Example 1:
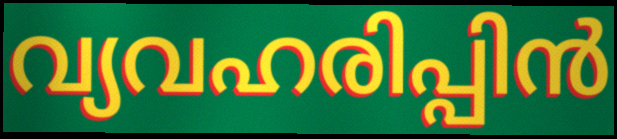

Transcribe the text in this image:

വ്യവഹരിപ്പിൻ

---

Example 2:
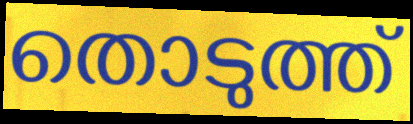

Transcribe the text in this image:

തൊടുത്ത്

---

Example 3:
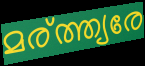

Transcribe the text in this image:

മര്ത്ത്യരേ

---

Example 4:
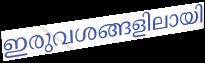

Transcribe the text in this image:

ഇരുവശങ്ങളിലായി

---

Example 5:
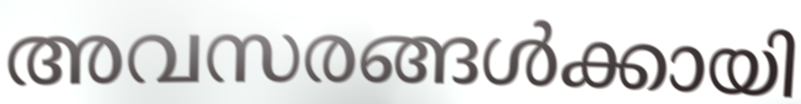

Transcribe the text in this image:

അവസരങ്ങൾക്കായി